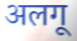
अलगू